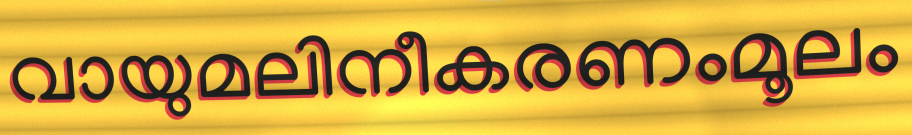
വായുമലിനീകരണംമൂലം